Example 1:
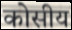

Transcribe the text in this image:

कोसीय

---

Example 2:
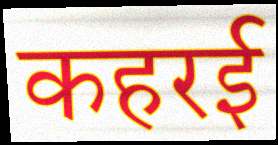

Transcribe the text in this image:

कहरई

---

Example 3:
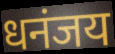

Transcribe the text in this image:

धनंजय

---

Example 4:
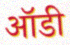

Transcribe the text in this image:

ऑडी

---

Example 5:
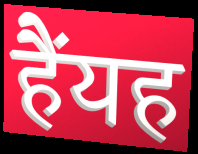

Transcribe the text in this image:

हैंयह